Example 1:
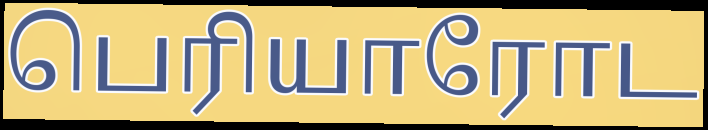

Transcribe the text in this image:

பெரியாரோட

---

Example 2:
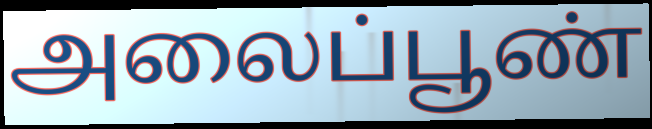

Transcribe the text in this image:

அலைப்பூண்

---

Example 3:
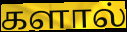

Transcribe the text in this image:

களால்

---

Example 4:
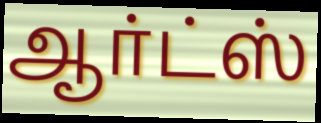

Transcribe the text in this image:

ஆர்ட்ஸ்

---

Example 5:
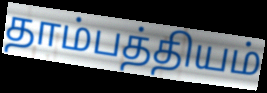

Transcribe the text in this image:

தாம்பத்தியம்